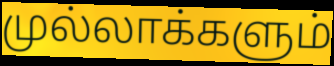
முல்லாக்களும்